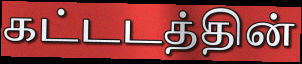
கட்டடத்தின்